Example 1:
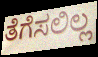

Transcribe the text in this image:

ತೆಗೆಸಲಿಲ್ಲ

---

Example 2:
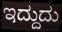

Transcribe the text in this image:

ಇದ್ದುದು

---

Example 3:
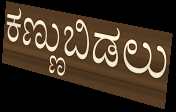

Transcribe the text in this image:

ಕಣ್ಣುಬಿಡಲು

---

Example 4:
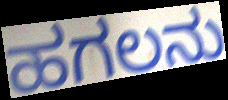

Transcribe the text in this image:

ಹಗಲನು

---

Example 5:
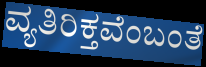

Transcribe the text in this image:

ವ್ಯತಿರಿಕ್ತವೆಂಬಂತೆ